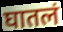
घातलं